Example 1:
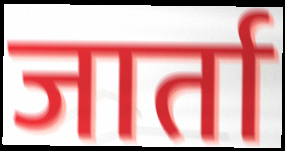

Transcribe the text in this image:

जार्ता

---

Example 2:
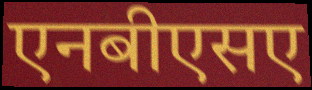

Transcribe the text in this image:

एनबीएसए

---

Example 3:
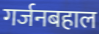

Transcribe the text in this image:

गर्जनबहाल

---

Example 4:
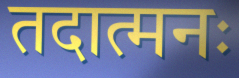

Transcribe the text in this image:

तदात्मनः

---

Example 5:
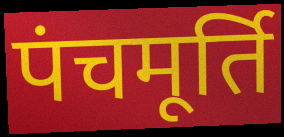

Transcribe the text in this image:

पंचमूर्ति